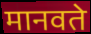
मानवते